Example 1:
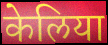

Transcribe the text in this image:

केलिया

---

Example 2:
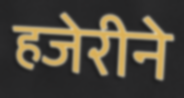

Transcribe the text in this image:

हजेरीने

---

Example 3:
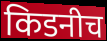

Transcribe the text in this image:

किडनीच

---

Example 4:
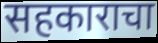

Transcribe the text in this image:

सहकाराचा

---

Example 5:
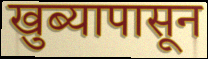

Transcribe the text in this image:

खुब्यापासून